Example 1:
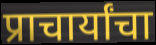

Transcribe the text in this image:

प्राचार्यांचा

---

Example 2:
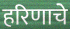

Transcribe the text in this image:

हरिणाचे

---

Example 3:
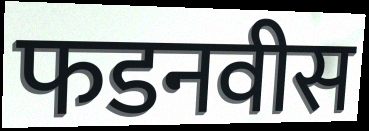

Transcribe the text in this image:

फडनवीस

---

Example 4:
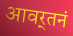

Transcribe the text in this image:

आवर्तनं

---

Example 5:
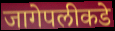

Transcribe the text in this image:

जागेपलीकडे